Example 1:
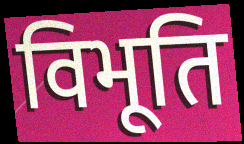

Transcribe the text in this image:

विभूति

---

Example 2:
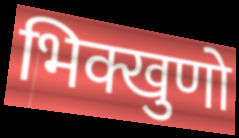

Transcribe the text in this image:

भिक्खुणो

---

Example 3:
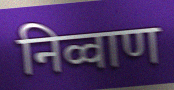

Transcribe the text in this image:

निव्वाण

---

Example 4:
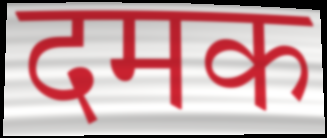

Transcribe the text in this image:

दमक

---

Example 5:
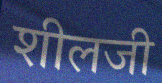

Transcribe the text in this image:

शीलजी